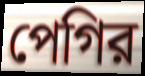
পেগির